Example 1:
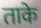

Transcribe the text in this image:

ताके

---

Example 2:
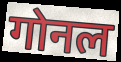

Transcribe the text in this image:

गोनल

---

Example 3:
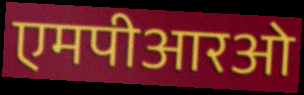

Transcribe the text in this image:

एमपीआरओ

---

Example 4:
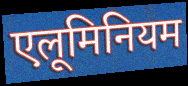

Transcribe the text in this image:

एलूमिनियम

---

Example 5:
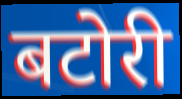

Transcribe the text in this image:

बटोरी